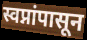
स्वप्नांपासून